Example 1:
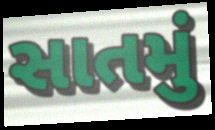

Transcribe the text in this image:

સાતમું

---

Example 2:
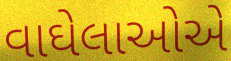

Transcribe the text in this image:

વાઘેલાઓએ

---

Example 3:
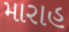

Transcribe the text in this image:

મારાહ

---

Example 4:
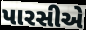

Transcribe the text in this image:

પારસીએ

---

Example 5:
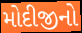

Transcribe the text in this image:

મોદીજીનો